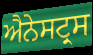
ਐਨੇਸਟ੍ਰਸ